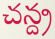
చన్ద్ర